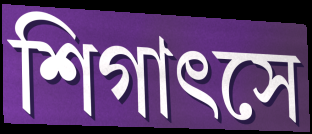
শিগাৎসে